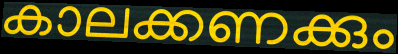
കാലക്കണക്കും